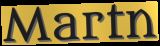
Martn